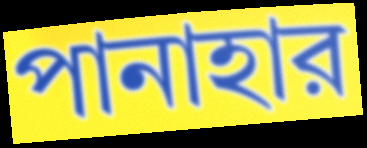
পানাহার